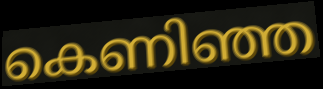
കെണിഞ്ഞ